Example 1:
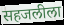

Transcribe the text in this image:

सहजलीला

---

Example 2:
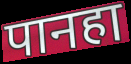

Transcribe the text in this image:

पानहा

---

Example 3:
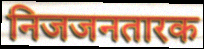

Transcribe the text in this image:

निजजनतारक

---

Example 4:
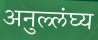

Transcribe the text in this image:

अनुल्लंघ्य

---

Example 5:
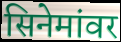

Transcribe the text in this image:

सिनेमांवर